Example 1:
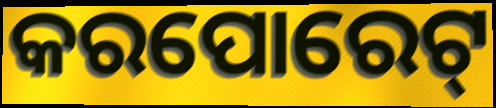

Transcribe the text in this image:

କରପୋରେଟ୍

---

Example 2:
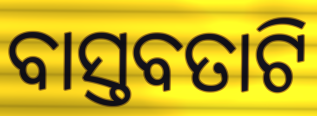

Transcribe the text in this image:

ବାସ୍ତବତାଟି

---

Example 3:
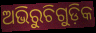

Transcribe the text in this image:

ଅଭିରୁଚିଗୁଡ଼ିକ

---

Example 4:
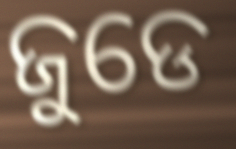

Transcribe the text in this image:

ଜୁଡେ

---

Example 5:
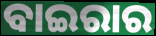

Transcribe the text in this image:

ବାଇରାର